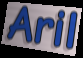
Aril